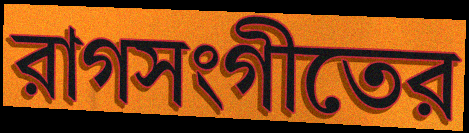
রাগসংগীতের